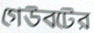
গেউবটের